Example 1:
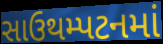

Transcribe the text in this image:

સાઉથમ્પટનમાં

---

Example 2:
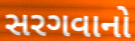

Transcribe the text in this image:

સરગવાનો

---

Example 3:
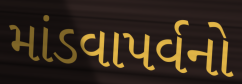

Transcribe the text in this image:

માંડવાપર્વનો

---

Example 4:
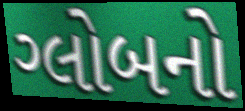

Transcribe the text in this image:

ગ્લોબનો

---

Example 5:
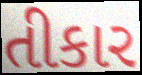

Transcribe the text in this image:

તીકાર